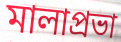
মালাপ্রভা